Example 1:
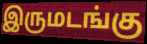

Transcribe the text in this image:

இருமடங்கு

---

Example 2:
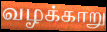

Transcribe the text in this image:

வழக்காறு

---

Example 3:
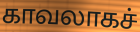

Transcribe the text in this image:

காவலாகச்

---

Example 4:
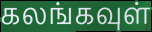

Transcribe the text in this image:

கலங்கவுள்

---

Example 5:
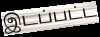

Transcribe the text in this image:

இடப்பட்ட